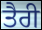
ਤੈਰੀ